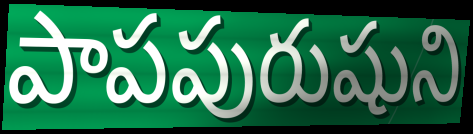
పాపపురుషుని